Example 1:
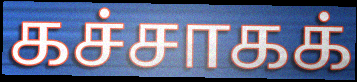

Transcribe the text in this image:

கச்சாகக்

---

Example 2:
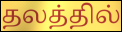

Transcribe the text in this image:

தலத்தில்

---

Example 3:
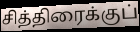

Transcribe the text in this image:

சித்திரைக்குப்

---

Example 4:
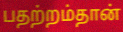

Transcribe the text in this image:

பதற்றம்தான்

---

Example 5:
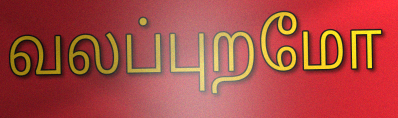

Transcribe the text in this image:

வலப்புறமோ